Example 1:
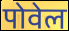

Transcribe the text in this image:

पोवेल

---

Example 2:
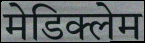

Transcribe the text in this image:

मेडिक्लेम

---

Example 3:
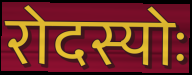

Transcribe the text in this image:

रोदस्योः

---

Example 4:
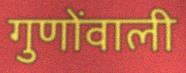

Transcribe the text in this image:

गुणोंवाली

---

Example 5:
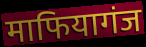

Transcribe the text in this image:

माफियागंज